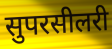
सुपरसीलरी